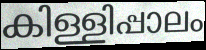
കിള്ളിപ്പാലം